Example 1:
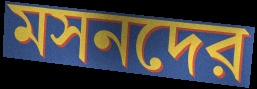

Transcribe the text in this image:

মসনদের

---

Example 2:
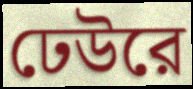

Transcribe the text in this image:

ঢেউরে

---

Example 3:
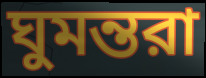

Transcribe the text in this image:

ঘুমন্তরা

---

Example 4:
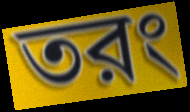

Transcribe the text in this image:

তরং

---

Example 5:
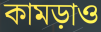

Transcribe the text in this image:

কামড়াও